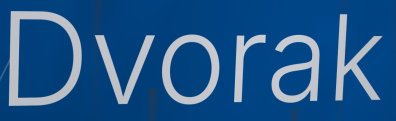
Dvorak